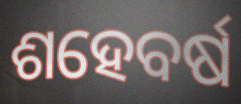
ଶହେବର୍ଷ